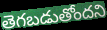
తెగబడుతోందని